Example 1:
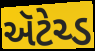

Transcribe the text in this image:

ઍટેચ્ડ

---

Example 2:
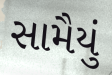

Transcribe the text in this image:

સામૈયું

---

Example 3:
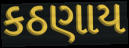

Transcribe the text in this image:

કઠણાય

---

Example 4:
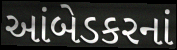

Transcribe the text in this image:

આંબેડકરનાં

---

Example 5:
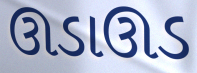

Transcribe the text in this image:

ઊડાઊડ